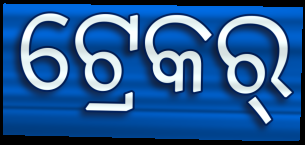
ଟ୍ରେକର୍